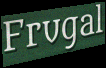
Frugal